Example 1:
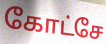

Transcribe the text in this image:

கோட்சே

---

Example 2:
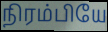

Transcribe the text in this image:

நிரம்பியே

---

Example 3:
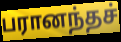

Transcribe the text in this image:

பரானந்தச்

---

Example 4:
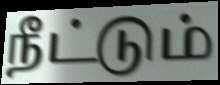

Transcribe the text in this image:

நீட்டும்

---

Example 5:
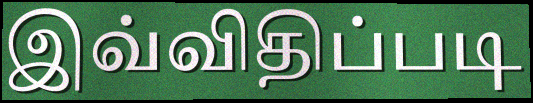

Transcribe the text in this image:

இவ்விதிப்படி